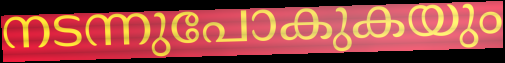
നടന്നുപോകുകയും